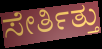
ಸೇರ್ತಿತ್ತು